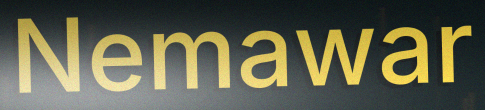
Nemawar